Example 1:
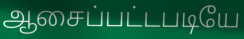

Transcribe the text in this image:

ஆசைப்பட்டபடியே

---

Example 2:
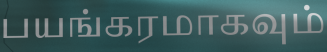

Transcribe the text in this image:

பயங்கரமாகவும்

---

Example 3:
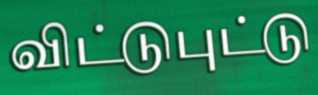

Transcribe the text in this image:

விட்டுபுட்டு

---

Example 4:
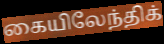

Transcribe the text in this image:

கையிலேந்திக்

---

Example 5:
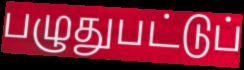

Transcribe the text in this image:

பழுதுபட்டுப்